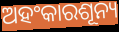
ଅହଂକାରଶୂନ୍ୟ